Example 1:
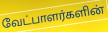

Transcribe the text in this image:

வேட்பாளர்களின்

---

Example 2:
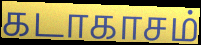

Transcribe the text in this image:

கடாகாசம்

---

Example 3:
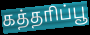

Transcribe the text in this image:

கத்தரிப்பூ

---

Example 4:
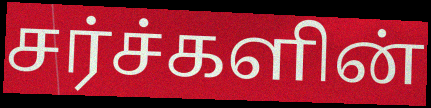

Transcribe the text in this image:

சர்ச்களின்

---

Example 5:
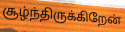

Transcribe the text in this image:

சூழ்ந்திருக்கிறேன்